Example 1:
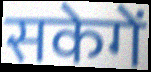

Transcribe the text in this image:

सकेगें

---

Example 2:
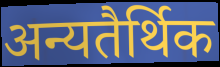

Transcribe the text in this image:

अन्यतैर्थिक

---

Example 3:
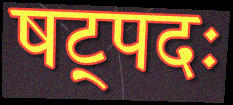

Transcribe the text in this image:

षट्पदः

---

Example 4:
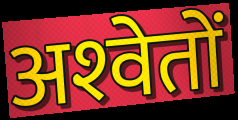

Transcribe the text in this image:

अश्‍वेतों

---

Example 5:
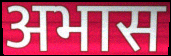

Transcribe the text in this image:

अभास